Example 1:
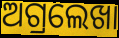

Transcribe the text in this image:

ଅଗ୍ରଲେଖା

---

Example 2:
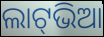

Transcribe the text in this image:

ଲାଟ୍‍ଭିଆ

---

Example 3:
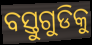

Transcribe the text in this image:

ବସ୍ତୁଗୁଡିକୁ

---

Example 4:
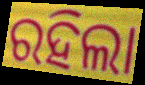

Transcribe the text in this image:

ରହିଲା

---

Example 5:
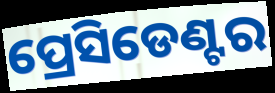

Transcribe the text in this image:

ପ୍ରେସିଡେଣ୍ଟର